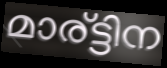
മാര്ട്ടിന